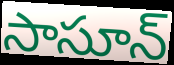
సాసూన్